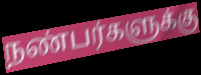
நண்பர்களுக்கு